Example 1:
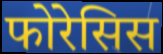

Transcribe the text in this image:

फोरेसिस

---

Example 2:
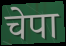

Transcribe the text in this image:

चेपा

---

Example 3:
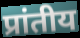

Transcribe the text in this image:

प्रांतीय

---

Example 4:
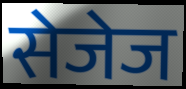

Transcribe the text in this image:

सेजेज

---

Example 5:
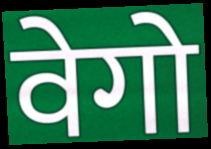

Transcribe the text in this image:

वेगो